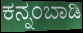
ಕನ್ನಂಬಾಡಿ